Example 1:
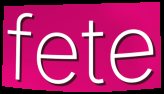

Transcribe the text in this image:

fete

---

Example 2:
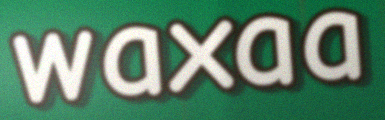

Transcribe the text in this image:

waxaa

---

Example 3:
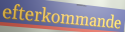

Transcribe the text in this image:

efterkommande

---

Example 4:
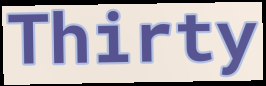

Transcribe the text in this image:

Thirty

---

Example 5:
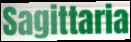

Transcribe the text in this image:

Sagittaria